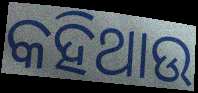
କହିଥାଉ